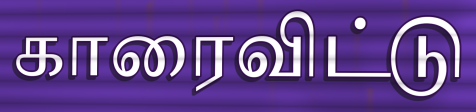
காரைவிட்டு